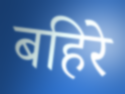
बहिरे